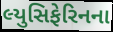
લ્યુસિફેરિનના